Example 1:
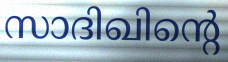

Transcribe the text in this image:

സാദിഖിന്റെ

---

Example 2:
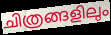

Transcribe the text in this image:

ചിത്രങ്ങളിലും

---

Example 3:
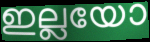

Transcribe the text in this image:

ഇല്ലയോ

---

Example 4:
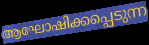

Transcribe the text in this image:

ആഘോഷിക്കപ്പെടുന്ന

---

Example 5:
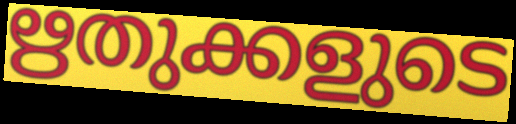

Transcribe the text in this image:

ഋതുക്കളുടെ